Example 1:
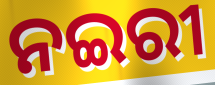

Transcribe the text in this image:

ନଇରୀ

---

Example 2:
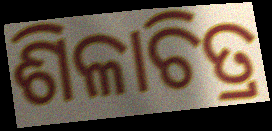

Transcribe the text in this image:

ଶିଳାଚିତ୍ର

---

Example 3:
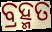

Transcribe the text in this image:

ବ୍ରହ୍ମତ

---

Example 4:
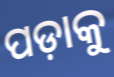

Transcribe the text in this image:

ପଡ଼ାକୁ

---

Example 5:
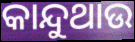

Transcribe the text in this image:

କାନ୍ଦୁଥାଉ